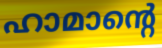
ഹാമാന്റെ